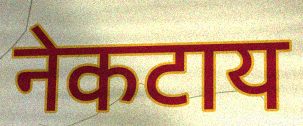
नेकटाय